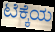
ಟೆಕ್ಕೆಯ